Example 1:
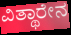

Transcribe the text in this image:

ವಿತ್ಥಾರೇನ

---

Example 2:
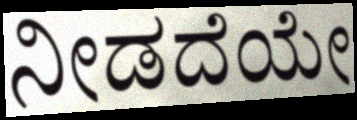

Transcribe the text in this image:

ನೀಡದೆಯೇ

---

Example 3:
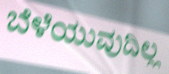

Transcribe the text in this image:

ಬೆಳೆಯುವುದಿಲ್ಲ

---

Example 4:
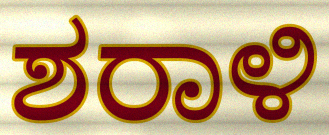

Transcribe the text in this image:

ಶರಾಳಿ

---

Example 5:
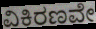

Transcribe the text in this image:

ವಿಕಿರಣವೇ